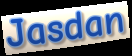
Jasdan